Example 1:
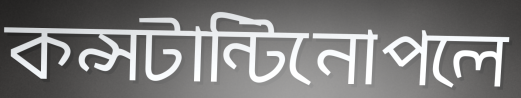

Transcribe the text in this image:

কন্সটান্টিনোপলে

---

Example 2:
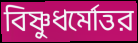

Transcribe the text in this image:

বিষ্ণুধর্মোত্তর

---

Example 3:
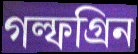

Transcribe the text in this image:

গল্ফগ্রিন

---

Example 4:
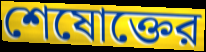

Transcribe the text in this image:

শেষোক্তের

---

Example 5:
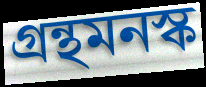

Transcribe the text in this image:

গ্রন্থমনস্ক